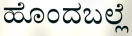
ಹೊಂದಬಲ್ಲೆ